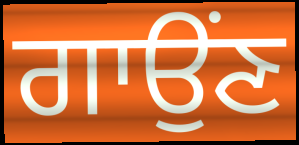
ਗਾਉਂਣ